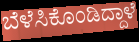
ಬೆಳೆಸಿಕೊಂಡಿದ್ದಾಳೆ